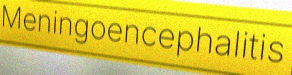
Meningoencephalitis